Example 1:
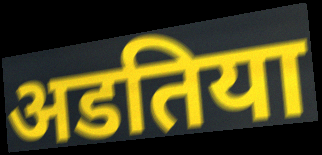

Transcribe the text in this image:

अडतिया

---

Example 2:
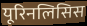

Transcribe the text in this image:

यूरिनलिसिस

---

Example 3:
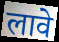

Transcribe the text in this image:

लावे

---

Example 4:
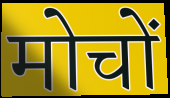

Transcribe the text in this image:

मोचों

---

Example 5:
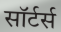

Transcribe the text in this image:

सॉर्टर्स